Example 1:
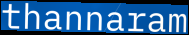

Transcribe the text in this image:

thannaram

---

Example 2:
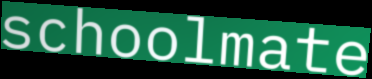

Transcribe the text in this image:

schoolmate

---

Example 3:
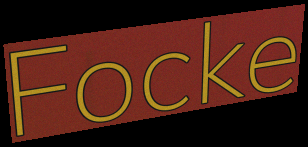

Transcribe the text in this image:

Focke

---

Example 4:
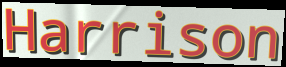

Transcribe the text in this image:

Harrison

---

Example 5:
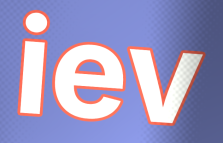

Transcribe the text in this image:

iev